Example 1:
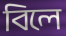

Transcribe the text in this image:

বিলে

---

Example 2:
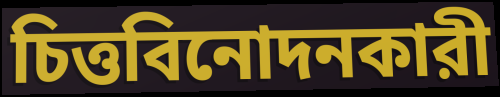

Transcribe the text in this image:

চিত্তবিনোদনকারী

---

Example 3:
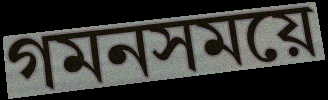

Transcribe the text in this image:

গমনসময়ে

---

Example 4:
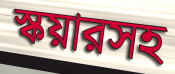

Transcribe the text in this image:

স্কয়ারসহ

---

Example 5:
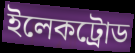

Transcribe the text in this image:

ইলেকট্রোড